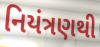
નિયંત્રણથી